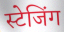
स्टेजिंग